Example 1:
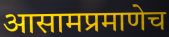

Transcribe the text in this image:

आसामप्रमाणेच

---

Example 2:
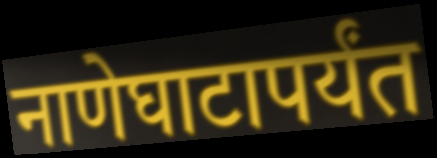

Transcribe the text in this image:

नाणेघाटापर्यंत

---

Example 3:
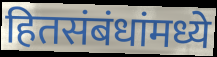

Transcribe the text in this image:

हितसंबंधांमध्ये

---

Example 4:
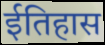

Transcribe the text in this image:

ईतिहास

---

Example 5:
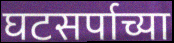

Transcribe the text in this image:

घटसर्पाच्या